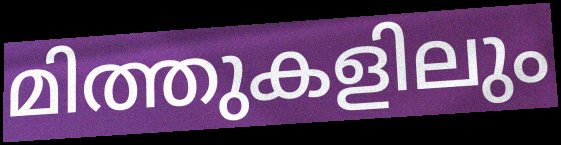
മിത്തുകളിലും